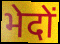
भेदों